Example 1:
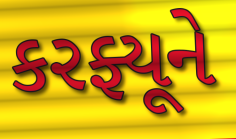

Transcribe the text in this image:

કરફ્યૂને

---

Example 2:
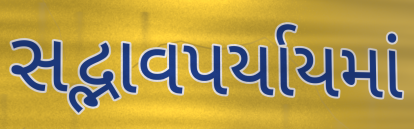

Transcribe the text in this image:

સદ્ભાવપર્યાયમાં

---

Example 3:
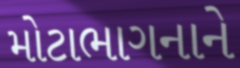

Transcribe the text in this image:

મોટાભાગનાને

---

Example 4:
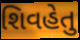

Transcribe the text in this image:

શિવહેતુ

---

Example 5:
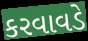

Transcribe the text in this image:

કરવાવડે